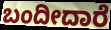
ಬಂದೀದಾರೆ